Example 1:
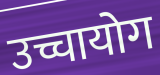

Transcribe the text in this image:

उच्चायोग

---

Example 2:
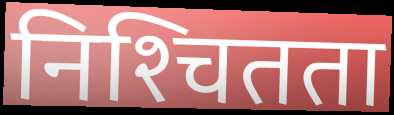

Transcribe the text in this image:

निश्चितता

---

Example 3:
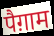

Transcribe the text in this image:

पैग़ाम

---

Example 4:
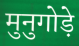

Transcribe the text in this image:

मुनुगोड़े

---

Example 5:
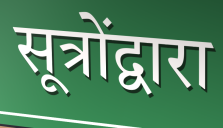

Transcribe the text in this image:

सूत्रोंद्वारा